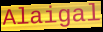
Alaigal